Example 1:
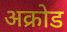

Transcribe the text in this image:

अक्रोड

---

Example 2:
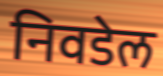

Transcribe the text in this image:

निवडेल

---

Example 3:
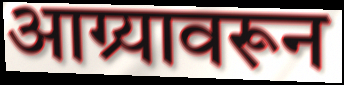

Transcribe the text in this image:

आग्र्यावरून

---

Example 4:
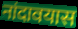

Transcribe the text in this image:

नांदावयास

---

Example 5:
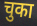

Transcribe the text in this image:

चुका